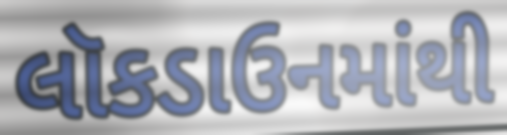
લૉકડાઉનમાંથી